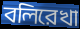
বলিরেখা